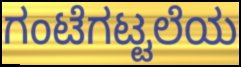
ಗಂಟೆಗಟ್ಟಲೆಯ